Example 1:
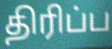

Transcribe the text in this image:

திரிப்ப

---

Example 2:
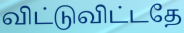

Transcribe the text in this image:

விட்டுவிட்டதே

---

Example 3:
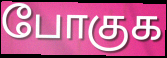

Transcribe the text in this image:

போகுக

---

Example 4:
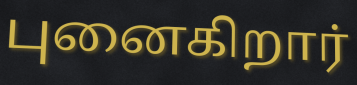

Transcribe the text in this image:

புனைகிறார்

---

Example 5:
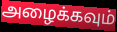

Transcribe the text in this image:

அழைக்கவும்